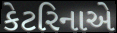
કેટરિનાએ